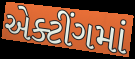
એક્ટીંગમાં